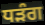
ਧੜੰਗ